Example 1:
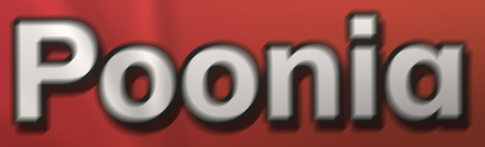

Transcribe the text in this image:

Poonia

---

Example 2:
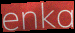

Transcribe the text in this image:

enka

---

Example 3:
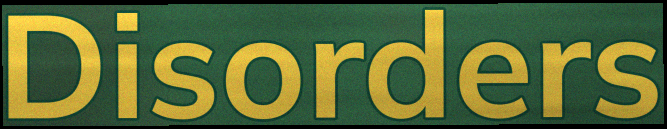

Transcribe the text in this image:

Disorders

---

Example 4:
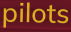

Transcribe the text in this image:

pilots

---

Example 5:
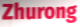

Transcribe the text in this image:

Zhurong